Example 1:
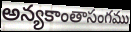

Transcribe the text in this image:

అన్యకాంతాసంగము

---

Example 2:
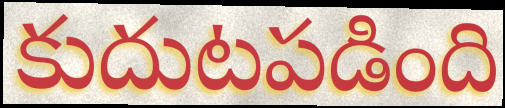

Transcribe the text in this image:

కుదుటపడింది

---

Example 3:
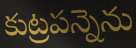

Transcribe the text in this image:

కుట్రపన్నెను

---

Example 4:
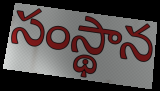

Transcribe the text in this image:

సంస్థాన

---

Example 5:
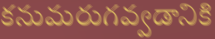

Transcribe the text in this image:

కనుమరుగవ్వడానికి